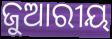
ଜୁଆରୀୟ